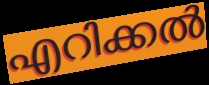
എറിക്കൽ